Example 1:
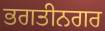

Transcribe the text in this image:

ਭਗਤੀਨਗਰ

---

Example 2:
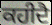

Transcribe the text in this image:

ਕਹੀਦੈ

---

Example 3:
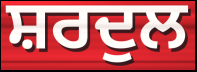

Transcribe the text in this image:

ਸ਼ਰਦੁਲ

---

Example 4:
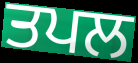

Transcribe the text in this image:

ਤਪਲ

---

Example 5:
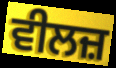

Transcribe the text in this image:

ਵੀਲਜ਼